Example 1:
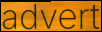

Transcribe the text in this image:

advert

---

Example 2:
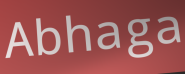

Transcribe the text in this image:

Abhaga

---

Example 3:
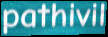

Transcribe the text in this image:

pathivil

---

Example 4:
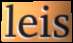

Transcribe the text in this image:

leis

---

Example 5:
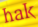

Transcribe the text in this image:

hak